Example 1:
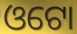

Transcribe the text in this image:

ଓଟୋ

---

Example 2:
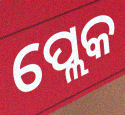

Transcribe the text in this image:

ପ୍ଲେକ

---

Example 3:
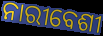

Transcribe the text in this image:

ନାରୀବେଶୀ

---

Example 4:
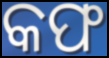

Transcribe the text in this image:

କଫ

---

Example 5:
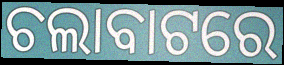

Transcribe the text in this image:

ଚଲାବାଟରେ